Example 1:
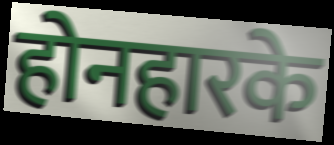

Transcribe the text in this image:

होनहारके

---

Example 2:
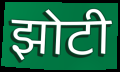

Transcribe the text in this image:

झोटी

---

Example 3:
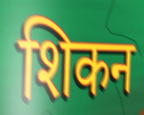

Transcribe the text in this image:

शिकन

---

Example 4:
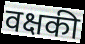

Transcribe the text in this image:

वक्षकी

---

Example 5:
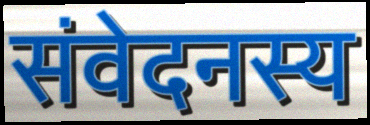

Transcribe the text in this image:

संवेदनस्य